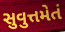
સુવુત્તમેતં